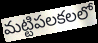
మట్టిపలకలలో